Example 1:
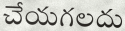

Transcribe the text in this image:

చేయగలదు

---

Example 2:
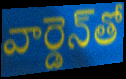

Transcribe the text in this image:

వార్డెన్‌తో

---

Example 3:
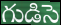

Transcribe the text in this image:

గుడిసె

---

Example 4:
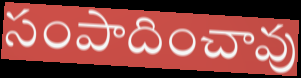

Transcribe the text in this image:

సంపాదించావు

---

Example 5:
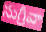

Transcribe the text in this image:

సుగ్రీవా